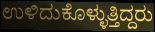
ಉಳಿದುಕೊಳ್ಳುತ್ತಿದ್ದರು